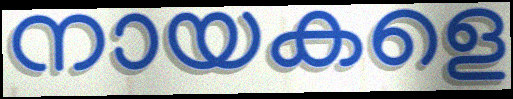
നായകളെ